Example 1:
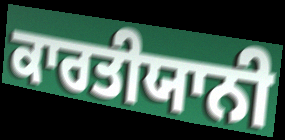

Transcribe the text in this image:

ਕਾਰਤੀਯਾਨੀ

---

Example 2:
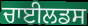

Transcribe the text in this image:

ਚਾਈਲਡਸ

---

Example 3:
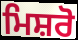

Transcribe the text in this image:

ਮਿਸ਼ਰੋ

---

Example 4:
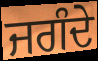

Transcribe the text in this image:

ਜਗੰਦੇ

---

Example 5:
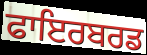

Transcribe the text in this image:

ਫਾਇਰਬਰਡ